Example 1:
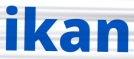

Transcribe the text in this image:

ikan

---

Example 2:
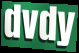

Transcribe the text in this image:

dvdy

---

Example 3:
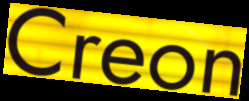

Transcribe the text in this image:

Creon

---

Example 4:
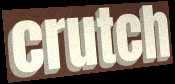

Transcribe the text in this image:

crutch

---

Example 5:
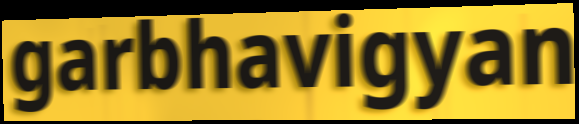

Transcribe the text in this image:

garbhavigyan